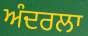
ਅੰਦਰਲਾ